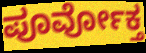
ಪೂರ್ವೋಕ್ತ